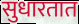
सुधारतात